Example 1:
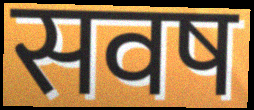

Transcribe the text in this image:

सवष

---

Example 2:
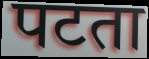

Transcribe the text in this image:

पटता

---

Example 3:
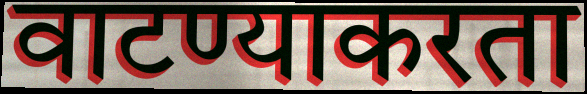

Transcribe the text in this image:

वाटण्याकरता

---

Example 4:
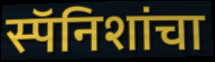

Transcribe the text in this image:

स्पॅनिशांचा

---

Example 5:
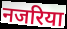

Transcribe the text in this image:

नजरिया